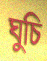
ঘুচি